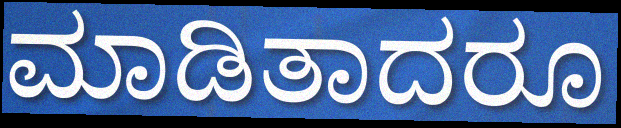
ಮಾಡಿತಾದರೂ